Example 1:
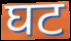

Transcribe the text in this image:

घट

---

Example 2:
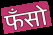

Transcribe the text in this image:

फँसो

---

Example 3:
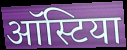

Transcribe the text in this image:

ऑस्टिया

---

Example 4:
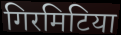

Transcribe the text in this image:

गिरमिटिया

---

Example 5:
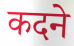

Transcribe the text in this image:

कदने